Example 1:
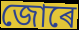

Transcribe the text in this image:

জোৰে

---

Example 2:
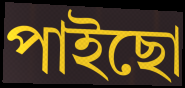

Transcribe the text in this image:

পাইছো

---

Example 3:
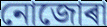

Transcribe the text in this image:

নোজোৰা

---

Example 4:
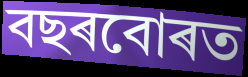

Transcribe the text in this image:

বছৰবোৰত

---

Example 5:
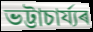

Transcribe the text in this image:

ভট্টাচাৰ্য্যৰ